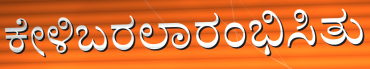
ಕೇಳಿಬರಲಾರಂಭಿಸಿತು